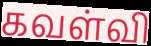
கவள்வி